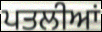
ਪਤਲੀਆਂ